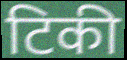
टिकी